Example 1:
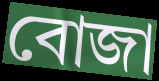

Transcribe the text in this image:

বোজা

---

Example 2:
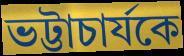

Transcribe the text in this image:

ভট্টাচার্যকে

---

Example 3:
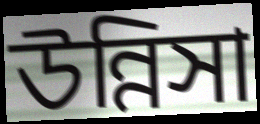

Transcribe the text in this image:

উন্নিসা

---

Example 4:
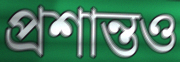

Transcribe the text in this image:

প্রশান্তও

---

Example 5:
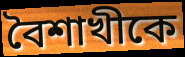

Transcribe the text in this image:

বৈশাখীকে